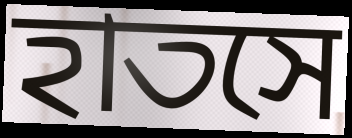
হাতসে